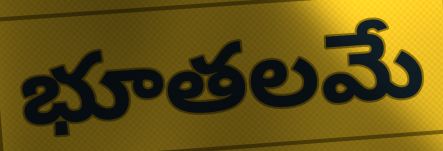
భూతలమే